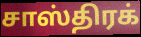
சாஸ்திரக்